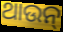
ଥାଉନ୍